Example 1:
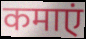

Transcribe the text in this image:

कमाएं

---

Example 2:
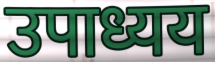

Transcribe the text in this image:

उपाध्यय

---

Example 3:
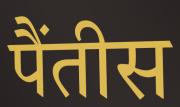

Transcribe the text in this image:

पैंतीस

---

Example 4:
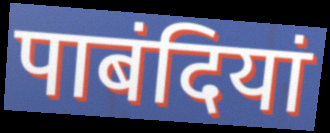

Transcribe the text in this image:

पाबंदियां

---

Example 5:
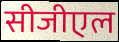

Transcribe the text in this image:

सीजीएल